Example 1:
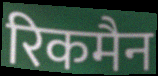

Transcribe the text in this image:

रिकमैन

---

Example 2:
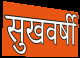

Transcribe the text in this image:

सुखवर्षी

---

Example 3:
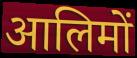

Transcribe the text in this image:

आलिमों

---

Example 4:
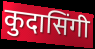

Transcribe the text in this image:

कुदासिंगी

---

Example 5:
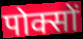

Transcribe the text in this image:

पोक्सों